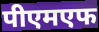
पीएमएफ